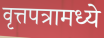
वृत्तपत्रामध्ये